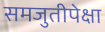
समजुतीपेक्षा